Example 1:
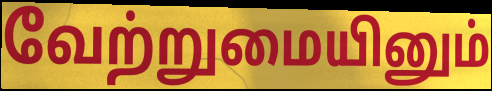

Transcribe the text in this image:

வேற்றுமையினும்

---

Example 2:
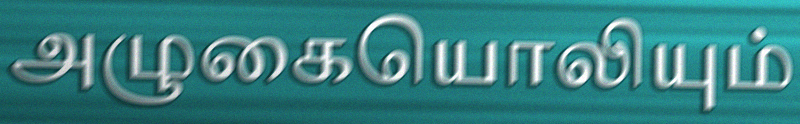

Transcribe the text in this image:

அழுகையொலியும்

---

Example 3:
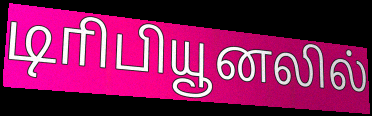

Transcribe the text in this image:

டிரிபியூனலில்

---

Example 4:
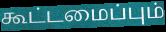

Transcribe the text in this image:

கூட்டமைப்பும்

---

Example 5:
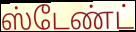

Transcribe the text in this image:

ஸ்டேண்ட்